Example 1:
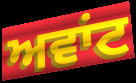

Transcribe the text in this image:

ਅਵਾਂਟ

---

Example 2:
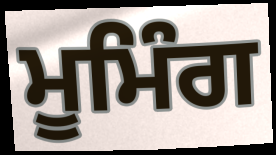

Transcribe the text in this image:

ਮੂਮਿੰਗ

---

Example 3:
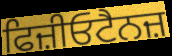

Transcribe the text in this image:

ਫਿਜ਼ੀਓਟੈਨਜ਼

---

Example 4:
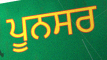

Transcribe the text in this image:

ਪੂਨਸਰ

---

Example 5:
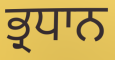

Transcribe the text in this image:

ਭ੍ਰਧਾਨ